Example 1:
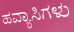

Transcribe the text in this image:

ಹವ್ಯಾಸಿಗಳು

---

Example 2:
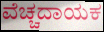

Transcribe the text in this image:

ವೆಚ್ಚದಾಯಕ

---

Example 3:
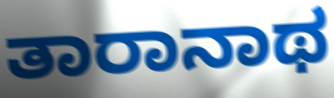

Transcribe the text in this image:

ತಾರಾನಾಥ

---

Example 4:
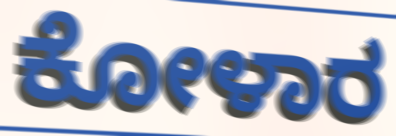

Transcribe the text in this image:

ಕೋಳಾರ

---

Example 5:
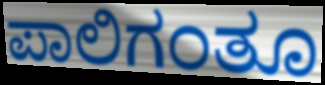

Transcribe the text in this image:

ಪಾಲಿಗಂತೂ